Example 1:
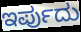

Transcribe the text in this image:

ಇರ್ಪುದು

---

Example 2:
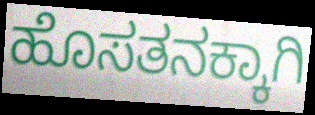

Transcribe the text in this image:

ಹೊಸತನಕ್ಕಾಗಿ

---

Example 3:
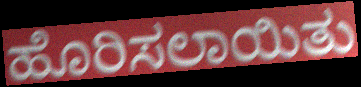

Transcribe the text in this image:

ಹೊರಿಸಲಾಯಿತು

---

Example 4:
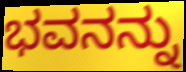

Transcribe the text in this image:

ಭವನನ್ನು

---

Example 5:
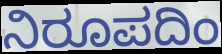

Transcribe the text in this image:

ನಿರೂಪದಿಂ